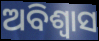
ଅବିଶ୍ବାସ